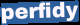
perfidy